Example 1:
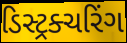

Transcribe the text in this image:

ડિસ્ટ્રક્ચરિંગ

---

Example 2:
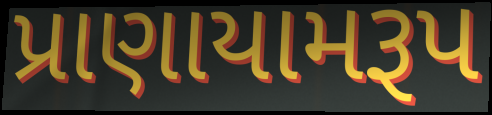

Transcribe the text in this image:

પ્રાણાયામરૂપ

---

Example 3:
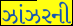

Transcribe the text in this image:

ઝાંઝરની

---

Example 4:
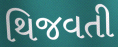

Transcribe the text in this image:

થિજવતી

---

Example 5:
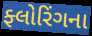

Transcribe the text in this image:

ફ્લોરિંગના